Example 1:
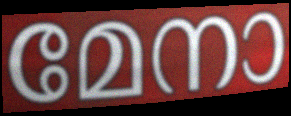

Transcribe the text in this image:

മേനാ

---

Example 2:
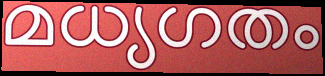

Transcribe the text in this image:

മധ്യഗതം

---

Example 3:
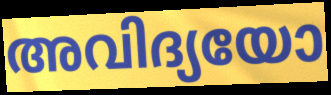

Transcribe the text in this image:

അവിദ്യയോ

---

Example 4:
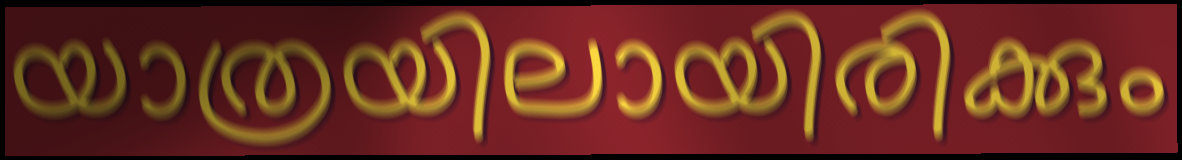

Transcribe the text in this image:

യാത്രയിലായിരിക്കും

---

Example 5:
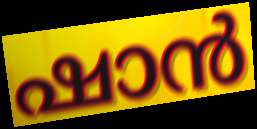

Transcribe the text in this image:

ഷാൻ